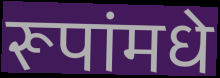
रूपांमधे